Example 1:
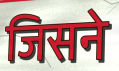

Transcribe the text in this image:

जिसने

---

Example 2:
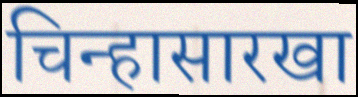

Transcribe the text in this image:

चिन्हासारखा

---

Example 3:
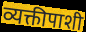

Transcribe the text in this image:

व्यक्तीपाशी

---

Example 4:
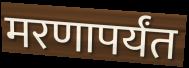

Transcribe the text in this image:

मरणापर्यंत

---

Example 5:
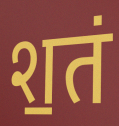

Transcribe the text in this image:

श॒तं